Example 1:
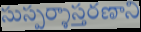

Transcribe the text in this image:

సుస్పర్శాస్తరణాని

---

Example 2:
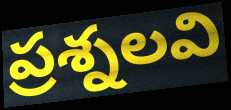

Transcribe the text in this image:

ప్రశ్నలవి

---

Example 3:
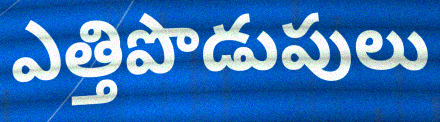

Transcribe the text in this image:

ఎత్తిపొడుపులు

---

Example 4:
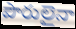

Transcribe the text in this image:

పౌరులైనా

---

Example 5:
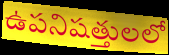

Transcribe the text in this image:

ఉపనిషత్తులలో